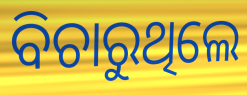
ବିଚାରୁଥିଲେ